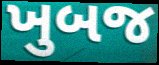
ખુબજ